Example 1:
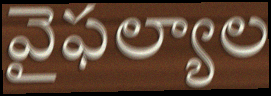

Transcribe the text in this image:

వైఫల్యాల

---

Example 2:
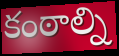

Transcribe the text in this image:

కంఠాల్ని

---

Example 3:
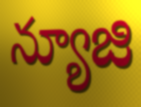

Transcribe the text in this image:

న్యూజి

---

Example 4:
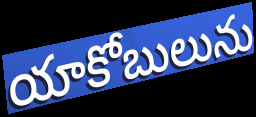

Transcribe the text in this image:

యాకోబులును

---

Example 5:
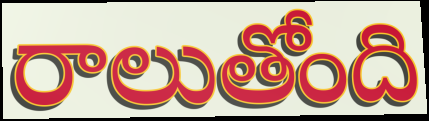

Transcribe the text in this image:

రాలుతోంది